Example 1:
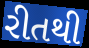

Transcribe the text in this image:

રીતથી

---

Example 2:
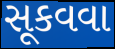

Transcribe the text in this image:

સૂકવવા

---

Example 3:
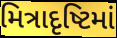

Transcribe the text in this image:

મિત્રાદૃષ્ટિમાં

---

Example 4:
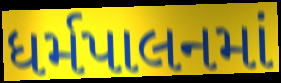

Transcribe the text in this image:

ધર્મપાલનમાં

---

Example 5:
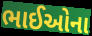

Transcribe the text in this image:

ભાઈઓના